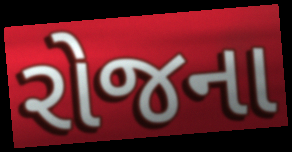
રોજના